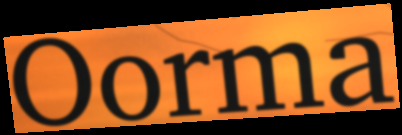
Oorma